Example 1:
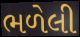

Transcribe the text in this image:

ભળેલી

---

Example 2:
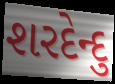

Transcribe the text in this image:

શરદેન્દુ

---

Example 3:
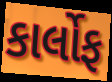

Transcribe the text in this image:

કાર્લોફ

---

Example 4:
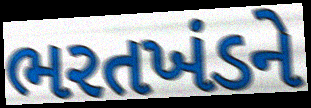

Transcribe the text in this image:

ભરતખંડને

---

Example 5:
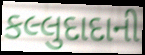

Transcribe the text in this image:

કલ્લુદાદાની